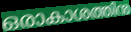
ഒരാകാശത്തിനു